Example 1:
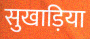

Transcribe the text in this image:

सुखाड़िया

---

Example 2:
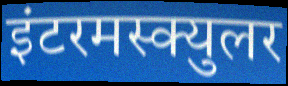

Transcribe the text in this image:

इंटरमस्क्युलर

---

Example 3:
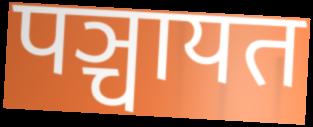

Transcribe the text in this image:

पञ्चायत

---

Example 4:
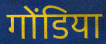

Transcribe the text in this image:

गोंडिया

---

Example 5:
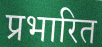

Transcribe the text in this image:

प्रभारित